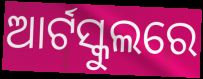
ଆର୍ଟସ୍କୁଲରେ